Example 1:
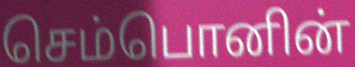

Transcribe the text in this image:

செம்பொனின்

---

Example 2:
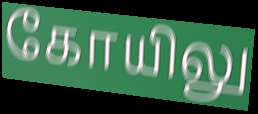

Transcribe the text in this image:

கோயிலு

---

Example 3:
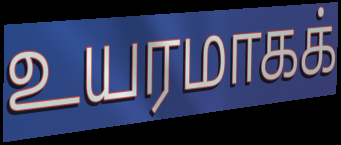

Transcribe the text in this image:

உயரமாகக்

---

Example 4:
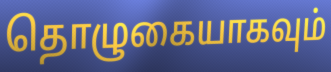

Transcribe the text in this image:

தொழுகையாகவும்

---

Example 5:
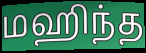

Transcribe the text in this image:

மஹிந்த